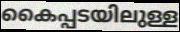
കൈപ്പടയിലുള്ള